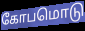
கோபமொடு